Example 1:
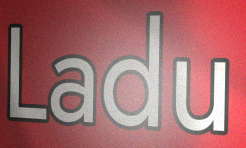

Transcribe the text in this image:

Ladu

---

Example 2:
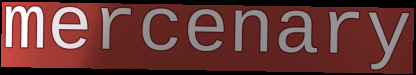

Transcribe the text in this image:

mercenary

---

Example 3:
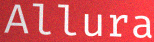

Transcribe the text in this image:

Allura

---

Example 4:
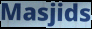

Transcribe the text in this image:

Masjids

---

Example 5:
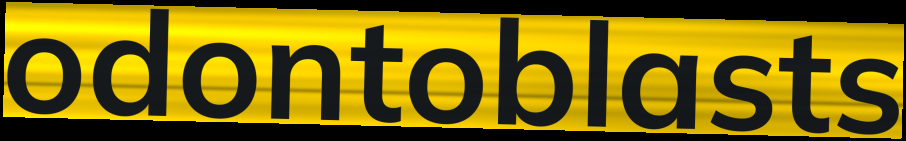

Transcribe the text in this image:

odontoblasts